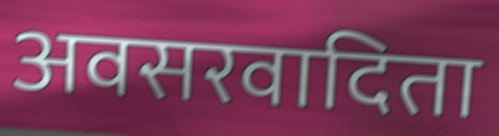
अवसरवादिता